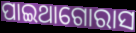
ପାଇଥାଗୋରାସ